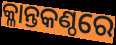
କ୍ଳାନ୍ତକଣ୍ଠରେ